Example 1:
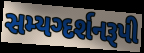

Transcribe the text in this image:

સમ્યગ્દર્શનરૂપી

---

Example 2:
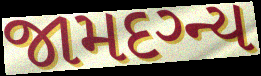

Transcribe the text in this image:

જામદગ્ન્ય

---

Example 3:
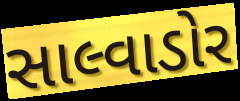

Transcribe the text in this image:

સાલ્વાડોર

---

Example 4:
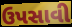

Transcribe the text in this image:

ઉપસાવી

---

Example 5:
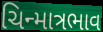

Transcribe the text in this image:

ચિન્માત્રભાવ